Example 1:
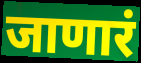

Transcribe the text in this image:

जाणारं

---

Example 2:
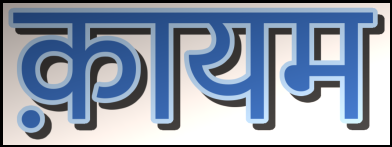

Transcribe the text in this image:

क़ायम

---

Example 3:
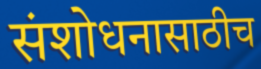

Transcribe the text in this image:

संशोधनासाठीच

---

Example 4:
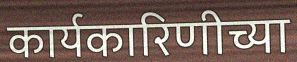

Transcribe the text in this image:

कार्यकारिणीच्या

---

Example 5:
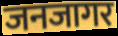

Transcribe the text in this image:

जनजागर